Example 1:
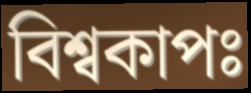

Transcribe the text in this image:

বিশ্বকাপঃ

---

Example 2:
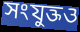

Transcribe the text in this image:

সংযুক্তও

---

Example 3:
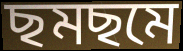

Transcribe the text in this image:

ছমছমে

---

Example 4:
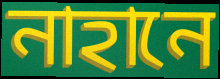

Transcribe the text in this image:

নাহানে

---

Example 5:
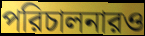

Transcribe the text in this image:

পরিচালনারও